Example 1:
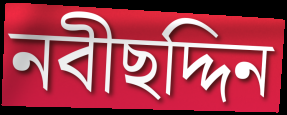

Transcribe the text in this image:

নবীছদ্দিন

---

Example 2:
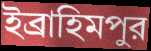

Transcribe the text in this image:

ইব্রাহিমপুর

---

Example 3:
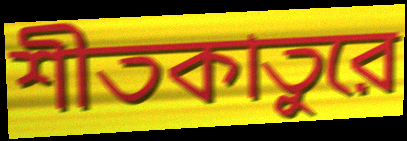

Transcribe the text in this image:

শীতকাতুরে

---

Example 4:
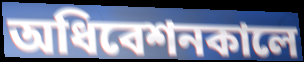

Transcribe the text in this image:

অধিবেশনকালে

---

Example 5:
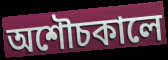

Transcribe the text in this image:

অশৌচকালে